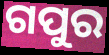
ଗପୁର